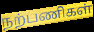
நற்பணிகள்